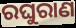
ରଘୁରାଣ